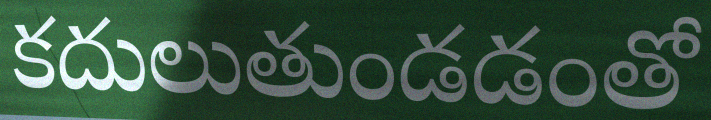
కదులుతుండడంతో